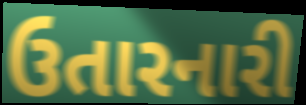
ઉતારનારી